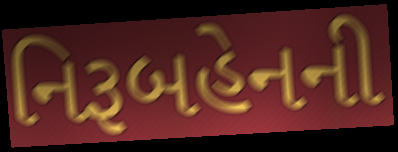
નિરૂબહેનની